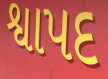
શ્વાપદ